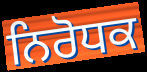
ਨਿਰੋਧਕ